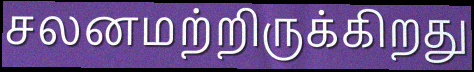
சலனமற்றிருக்கிறது